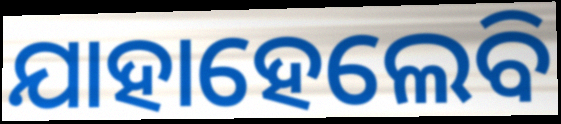
ଯାହାହେଲେବି